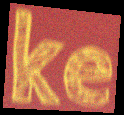
ke